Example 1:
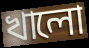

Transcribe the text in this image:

খালো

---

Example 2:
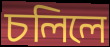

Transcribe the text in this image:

চলিলে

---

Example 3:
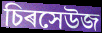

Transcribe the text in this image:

চিৰসেউজ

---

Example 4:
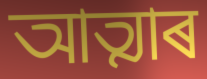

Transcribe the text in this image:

আত্মাৰ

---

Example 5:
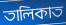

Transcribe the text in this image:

তালিকাত